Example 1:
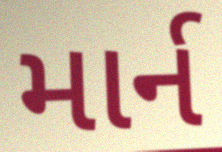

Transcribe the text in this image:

માર્ન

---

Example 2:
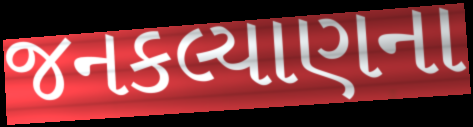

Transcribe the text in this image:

જનકલ્યાણના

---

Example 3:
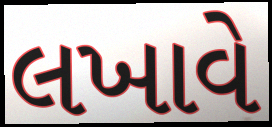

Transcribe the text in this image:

લખાવે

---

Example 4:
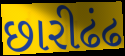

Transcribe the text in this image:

છારીઢંઢ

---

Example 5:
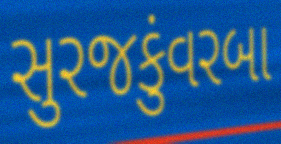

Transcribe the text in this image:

સુરજકુંવરબા